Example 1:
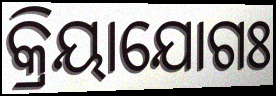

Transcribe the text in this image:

କ୍ରିୟାଯୋଗଃ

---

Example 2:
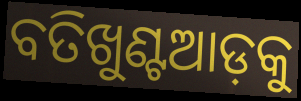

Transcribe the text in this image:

ବତିଖୁଣ୍ଟଆଡ଼କୁ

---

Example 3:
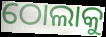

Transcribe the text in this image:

ଠୋଲାକୁ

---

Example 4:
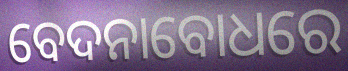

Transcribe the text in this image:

ବେଦନାବୋଧରେ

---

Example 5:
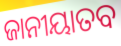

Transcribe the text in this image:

ଜାନୀୟାତବ